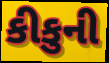
કીકુની